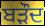
ਬੜੌਦ